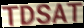
TDSAT